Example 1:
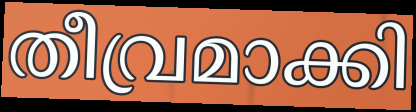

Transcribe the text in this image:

തീവ്രമാക്കി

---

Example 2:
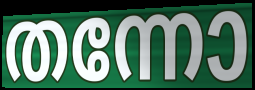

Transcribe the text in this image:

തന്നോ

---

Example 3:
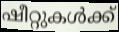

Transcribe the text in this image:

ഷീറ്റുകൾക്ക്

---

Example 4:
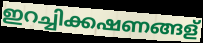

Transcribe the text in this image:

ഇറച്ചിക്കഷണങ്ങള്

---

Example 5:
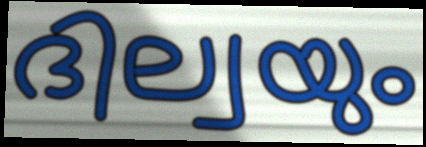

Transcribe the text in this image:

ദില്വയും